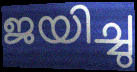
ജയിച്ചു